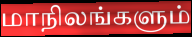
மாநிலங்களும்